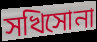
সখিসোনা